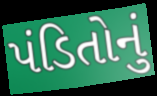
પંડિતોનું